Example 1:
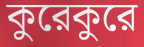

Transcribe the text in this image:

কুরেকুরে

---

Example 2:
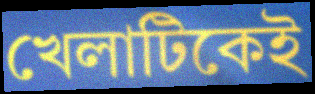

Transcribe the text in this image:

খেলাটিকেই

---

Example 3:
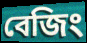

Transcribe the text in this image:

বেজিং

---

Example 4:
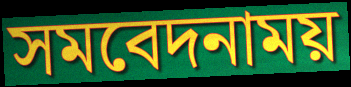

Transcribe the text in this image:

সমবেদনাময়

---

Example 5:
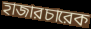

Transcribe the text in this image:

হাজারচারেক